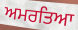
ਅਮਰਤਿਆ